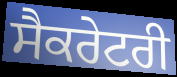
ਸੈਕਰੇਟਰੀ